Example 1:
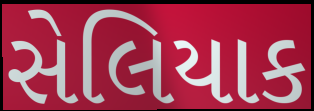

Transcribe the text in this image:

સેલિયાક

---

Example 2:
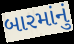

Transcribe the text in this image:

બારમાંનું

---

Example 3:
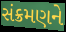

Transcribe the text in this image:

સંક્રમણને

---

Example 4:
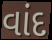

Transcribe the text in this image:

વાંદ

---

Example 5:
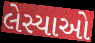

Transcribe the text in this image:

લેસ્યાઓ